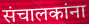
संचालकांना